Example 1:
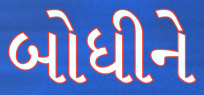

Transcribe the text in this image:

બોધીને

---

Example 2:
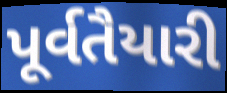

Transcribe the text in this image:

પૂર્વતૈયારી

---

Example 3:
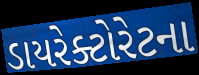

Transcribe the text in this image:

ડાયરેક્ટોરેટના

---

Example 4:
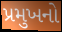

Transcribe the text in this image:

પ્રમુખનો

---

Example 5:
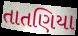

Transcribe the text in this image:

તાતણિયા